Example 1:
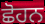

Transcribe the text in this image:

ਛੋਹਨ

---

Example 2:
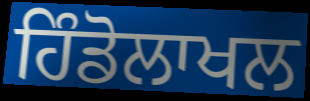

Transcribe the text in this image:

ਹਿੰਡੋਲਾਖਲ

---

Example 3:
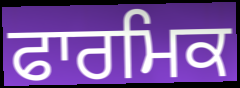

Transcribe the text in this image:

ਫਾਰਮਿਕ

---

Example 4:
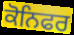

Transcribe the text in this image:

ਕੋਨਿਫਰ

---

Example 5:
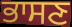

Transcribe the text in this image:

ਭਾਸਣ